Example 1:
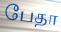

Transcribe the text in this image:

பேதா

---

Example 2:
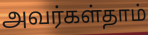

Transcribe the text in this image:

அவர்கள்தாம்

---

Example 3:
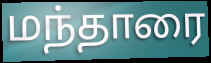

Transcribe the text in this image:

மந்தாரை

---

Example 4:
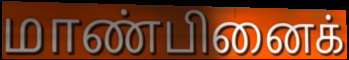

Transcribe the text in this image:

மாண்பினைக்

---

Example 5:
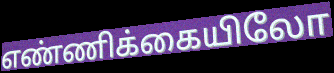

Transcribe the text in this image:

எண்ணிக்கையிலோ